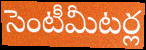
సెంటీమీటర్ల